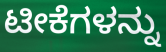
ಟೀಕೆಗಳನ್ನು